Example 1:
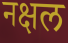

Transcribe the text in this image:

नक्षल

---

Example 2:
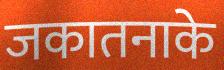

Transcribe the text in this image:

जकातनाके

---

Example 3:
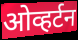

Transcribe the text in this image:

ओव्हर्टन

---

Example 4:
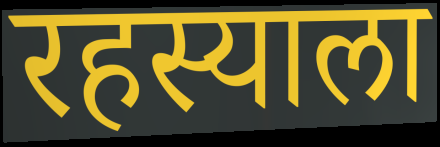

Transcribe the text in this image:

रहस्याला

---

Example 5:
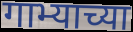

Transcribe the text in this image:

गाभ्याच्या